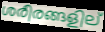
ശരീരങ്ങളില്